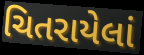
ચિતરાયેલાં